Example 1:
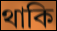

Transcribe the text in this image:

থাকি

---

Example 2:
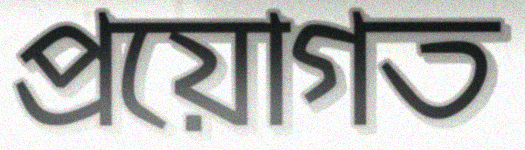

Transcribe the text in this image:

প্ৰয়োগত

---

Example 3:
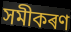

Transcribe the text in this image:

সমীকৰণ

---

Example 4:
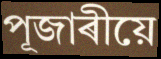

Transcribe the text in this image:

পূজাৰীয়ে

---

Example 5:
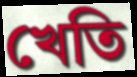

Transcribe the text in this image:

খেতি